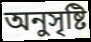
অনুসৃষ্টি